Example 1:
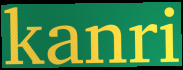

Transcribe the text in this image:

kanri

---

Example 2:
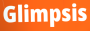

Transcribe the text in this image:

Glimpsis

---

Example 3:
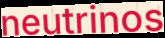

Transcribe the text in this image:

neutrinos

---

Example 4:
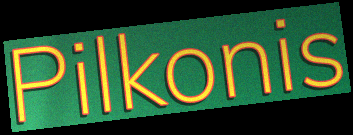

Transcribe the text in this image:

Pilkonis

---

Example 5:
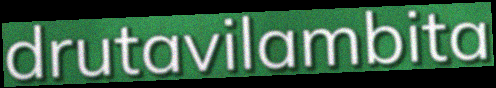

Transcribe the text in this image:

drutavilambita